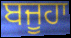
ਬਜੂਹਾ